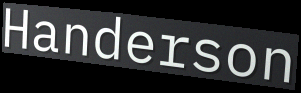
Handerson